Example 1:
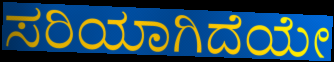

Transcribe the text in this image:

ಸರಿಯಾಗಿದೆಯೇ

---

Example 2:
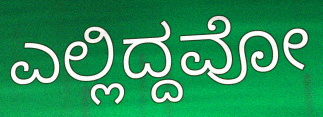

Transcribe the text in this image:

ಎಲ್ಲಿದ್ದವೋ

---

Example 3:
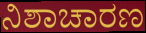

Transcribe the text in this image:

ನಿಶಾಚಾರಣ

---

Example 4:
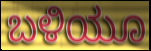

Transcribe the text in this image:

ಬಳಿಯೂ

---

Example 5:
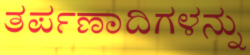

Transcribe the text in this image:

ತರ್ಪಣಾದಿಗಳನ್ನು